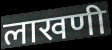
लाखणी